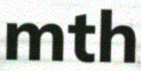
mth